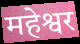
महेश्वर